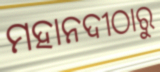
ମହାନଦୀଠାରୁ